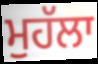
ਮੁਹੱਲਾ